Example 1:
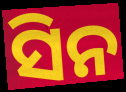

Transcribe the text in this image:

ସିନ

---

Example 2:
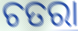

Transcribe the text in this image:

ଚତରା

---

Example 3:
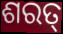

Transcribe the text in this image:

ଶରତ୍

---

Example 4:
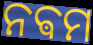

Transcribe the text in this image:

ନଵମ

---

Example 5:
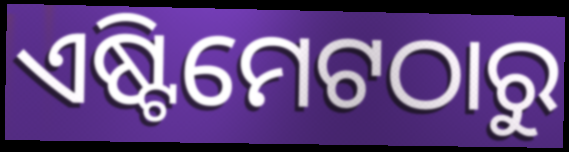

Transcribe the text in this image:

ଏଷ୍ଟିମେଟଠାରୁ